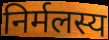
निर्मलस्य